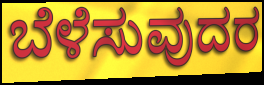
ಬೆಳೆಸುವುದರ